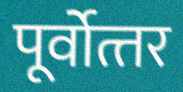
पूर्वोत्‍तर